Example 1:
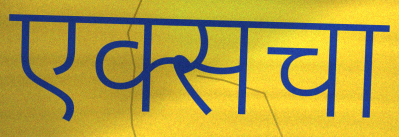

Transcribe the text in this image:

एक्सचा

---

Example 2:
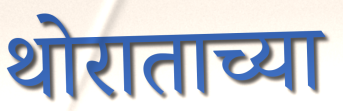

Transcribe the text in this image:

थोराताच्या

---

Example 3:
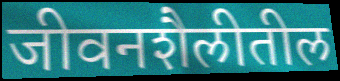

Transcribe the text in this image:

जीवनशैलीतील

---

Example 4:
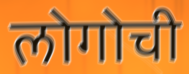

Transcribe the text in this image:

लोगोची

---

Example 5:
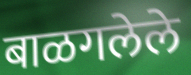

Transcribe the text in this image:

बाळगलेले